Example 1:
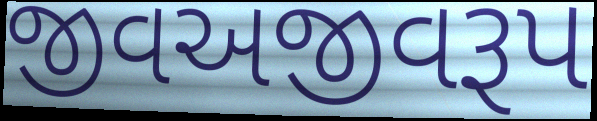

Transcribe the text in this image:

જીવઅજીવરૂપ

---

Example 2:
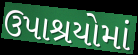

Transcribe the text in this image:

ઉપાશ્રયોમાં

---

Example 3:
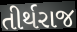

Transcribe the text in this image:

તીર્થરાજ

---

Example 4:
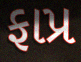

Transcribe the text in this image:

ફાપ્ર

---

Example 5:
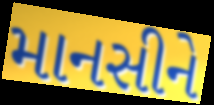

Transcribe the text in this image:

માનસીને